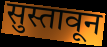
सुस्तावून